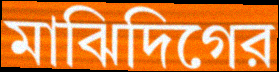
মাঝিদিগের